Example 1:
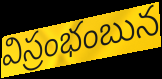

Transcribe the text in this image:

విస్రంభంబున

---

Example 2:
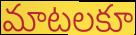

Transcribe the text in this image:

మాటలకూ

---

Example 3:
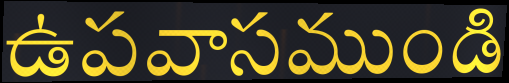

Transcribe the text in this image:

ఉపవాసముండి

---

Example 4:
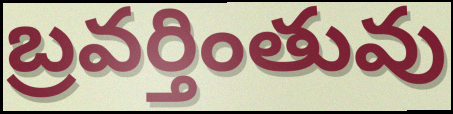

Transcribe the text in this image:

బ్రవర్తింతువు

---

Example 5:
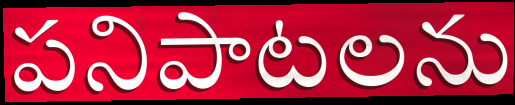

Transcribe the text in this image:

పనిపాటలను